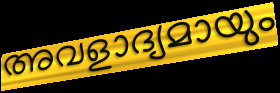
അവളാദ്യമായും